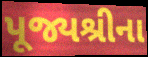
પૂજ્યશ્રીના